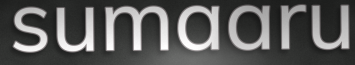
sumaaru